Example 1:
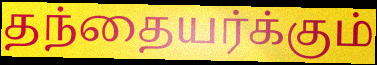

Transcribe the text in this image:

தந்தையர்க்கும்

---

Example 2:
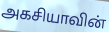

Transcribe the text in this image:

அகசியாவின்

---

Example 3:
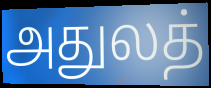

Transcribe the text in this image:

அதுலத்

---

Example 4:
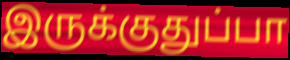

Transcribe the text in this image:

இருக்குதுப்பா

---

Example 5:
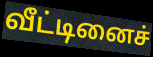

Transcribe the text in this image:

வீட்டினைச்